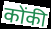
कोंकी